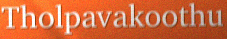
Tholpavakoothu